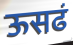
ऊसढं